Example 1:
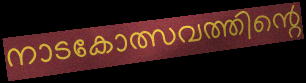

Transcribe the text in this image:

നാടകോത്സവത്തിന്റെ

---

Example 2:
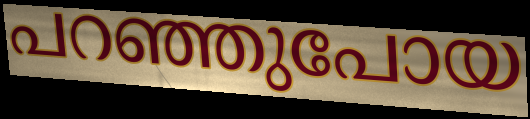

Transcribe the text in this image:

പറഞ്ഞുപോയ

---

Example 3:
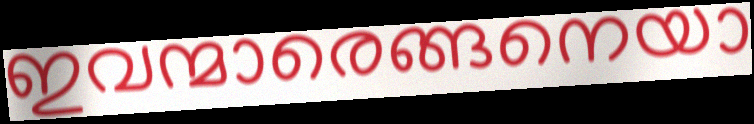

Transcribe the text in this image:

ഇവന്മാരെങ്ങനെയാ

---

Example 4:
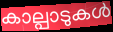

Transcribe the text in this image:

കാല്പാടുകൾ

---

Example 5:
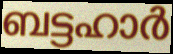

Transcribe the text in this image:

ബട്ടഹാർ